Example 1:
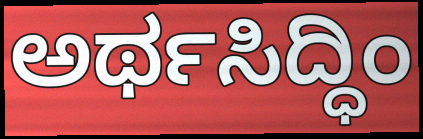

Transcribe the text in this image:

ಅರ್ಥಸಿದ್ಧಿಂ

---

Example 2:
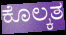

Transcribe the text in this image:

ಕೊಲ್ಕತ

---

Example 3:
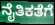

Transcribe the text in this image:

ನೈತಿಕತೆಗೆ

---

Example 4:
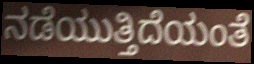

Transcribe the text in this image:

ನಡೆಯುತ್ತಿದೆಯಂತೆ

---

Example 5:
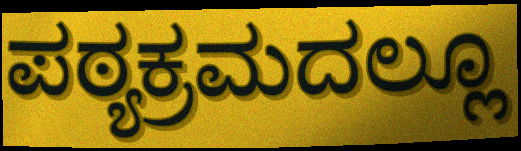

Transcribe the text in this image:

ಪಠ್ಯಕ್ರಮದಲ್ಲೂ